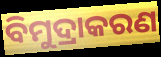
ବିମୁଦ୍ରାକରଣ